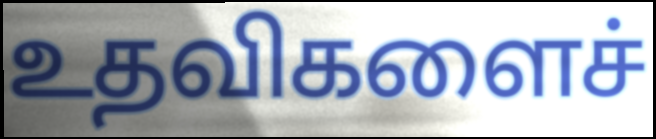
உதவிகளைச்